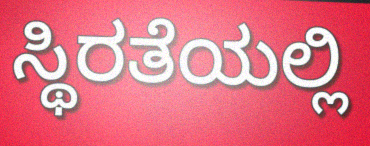
ಸ್ಥಿರತೆಯಲ್ಲಿ